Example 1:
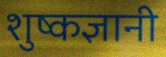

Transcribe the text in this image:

शुष्कज्ञानी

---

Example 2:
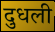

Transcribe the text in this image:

दुधली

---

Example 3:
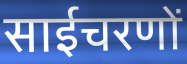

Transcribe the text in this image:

साईचरणों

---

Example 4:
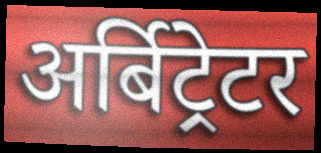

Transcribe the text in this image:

अर्बिट्रेटर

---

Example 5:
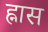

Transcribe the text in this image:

ह्नास